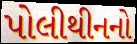
પોલીથીનનો